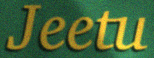
Jeetu